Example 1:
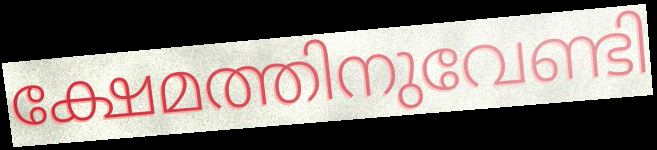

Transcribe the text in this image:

ക്ഷേമത്തിനുവേണ്ടി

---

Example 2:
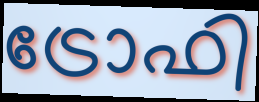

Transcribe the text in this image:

ട്രോഫി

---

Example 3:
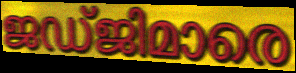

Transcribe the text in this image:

ജഡ്ജിമാരെ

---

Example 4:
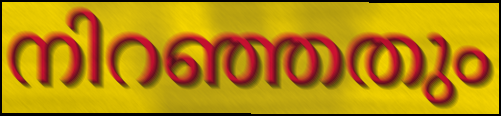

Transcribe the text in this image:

നിറഞ്ഞതും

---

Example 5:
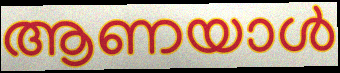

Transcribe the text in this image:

ആണയാൾ